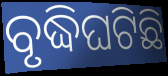
ବୃଦ୍ଧିଘଟିଛି